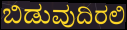
ಬಿಡುವುದಿರಲಿ